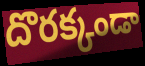
దొరక్కండా